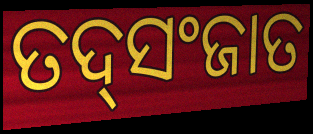
ତଦ୍‌ସଂଜାତ